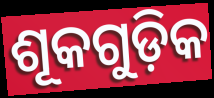
ଶୂକଗୁଡ଼ିକ